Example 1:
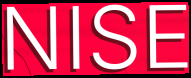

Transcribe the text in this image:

NISE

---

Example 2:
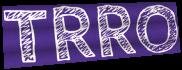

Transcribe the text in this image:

TRRO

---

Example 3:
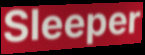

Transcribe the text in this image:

Sleeper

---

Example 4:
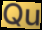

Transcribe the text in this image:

Qu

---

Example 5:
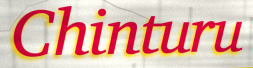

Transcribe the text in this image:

Chinturu